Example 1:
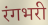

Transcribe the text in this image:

रंगभरी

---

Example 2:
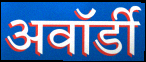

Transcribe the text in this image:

अवॉर्डी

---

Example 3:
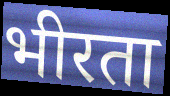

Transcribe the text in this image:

भीरता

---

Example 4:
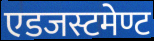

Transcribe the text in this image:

एडजस्टमेण्ट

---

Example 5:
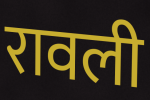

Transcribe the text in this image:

रावली